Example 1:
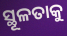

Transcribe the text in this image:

ସ୍ଥୂଳତାକୁ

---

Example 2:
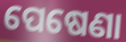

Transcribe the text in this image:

ପେଷେଣା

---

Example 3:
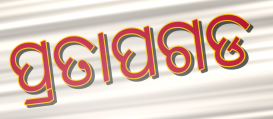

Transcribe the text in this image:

ପ୍ରତାପଗଡ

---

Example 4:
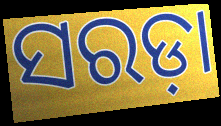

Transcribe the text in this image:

ସରଡ଼ା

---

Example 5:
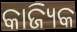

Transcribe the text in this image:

କାଜ୍ୟିକ